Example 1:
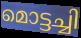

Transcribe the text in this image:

മൊട്ടച്ചി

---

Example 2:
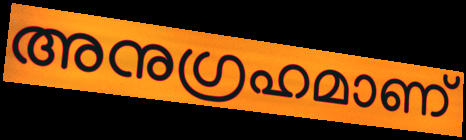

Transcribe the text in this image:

അനുഗ്രഹമാണ്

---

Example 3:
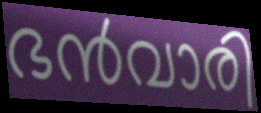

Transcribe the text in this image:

ഭൻവാരി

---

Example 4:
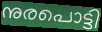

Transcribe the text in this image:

നുരപൊട്ടി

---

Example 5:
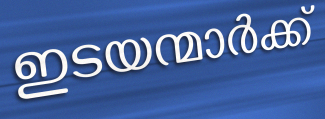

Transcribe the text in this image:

ഇടയന്മാർക്ക്